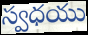
స్వధయు